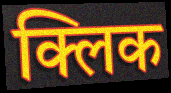
क्लिक